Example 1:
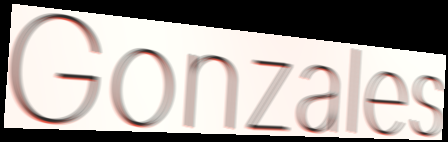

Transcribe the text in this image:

Gonzales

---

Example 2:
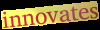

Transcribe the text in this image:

innovates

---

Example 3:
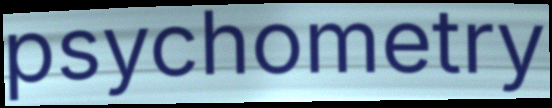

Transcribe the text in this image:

psychometry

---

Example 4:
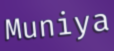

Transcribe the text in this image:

Muniya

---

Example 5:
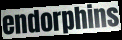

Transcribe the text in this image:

endorphins